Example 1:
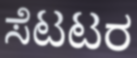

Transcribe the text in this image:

ಸೆಟಟರ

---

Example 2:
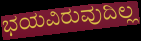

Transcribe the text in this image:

ಭಯವಿರುವುದಿಲ್ಲ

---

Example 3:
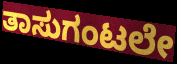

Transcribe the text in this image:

ತಾಸುಗಂಟಲೇ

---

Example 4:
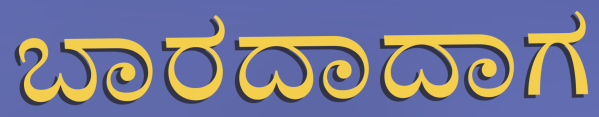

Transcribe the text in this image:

ಬಾರದಾದಾಗ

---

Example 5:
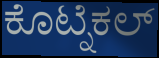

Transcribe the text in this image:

ಕೊಟ್ನೆಕಲ್